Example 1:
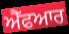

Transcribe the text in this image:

ਐੱਫਆਰ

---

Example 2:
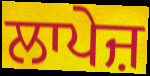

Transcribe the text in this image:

ਲਾਪੇਜ਼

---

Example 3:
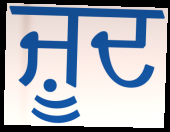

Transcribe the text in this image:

ਜ਼ੂਦ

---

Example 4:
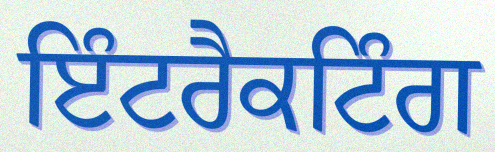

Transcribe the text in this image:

ਇੰਟਰੈਕਟਿੰਗ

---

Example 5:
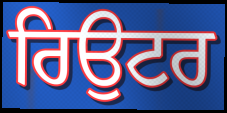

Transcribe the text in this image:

ਰਿਉਟਰ